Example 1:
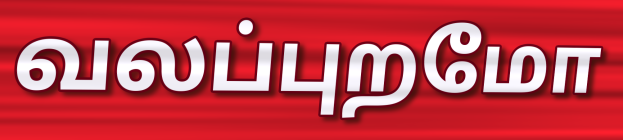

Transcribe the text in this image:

வலப்புறமோ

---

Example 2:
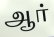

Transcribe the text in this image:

ஆர்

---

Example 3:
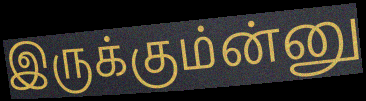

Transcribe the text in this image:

இருக்கும்ன்னு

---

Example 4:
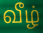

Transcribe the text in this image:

வீழ்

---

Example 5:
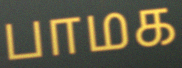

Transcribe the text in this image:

பாமக